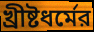
খ্রীষ্টধর্মের